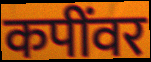
कपींवर